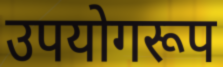
उपयोगरूप